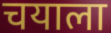
चयाला